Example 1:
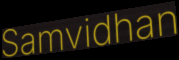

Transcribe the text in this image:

Samvidhan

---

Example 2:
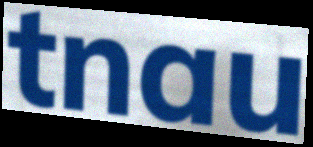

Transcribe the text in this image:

tnau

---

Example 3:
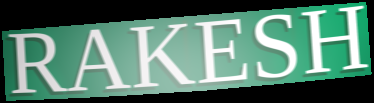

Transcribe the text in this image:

RAKESH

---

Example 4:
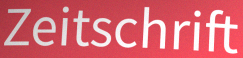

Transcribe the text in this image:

Zeitschrift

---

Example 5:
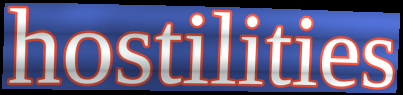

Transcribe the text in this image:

hostilities